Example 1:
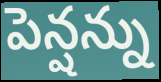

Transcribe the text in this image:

పెన్షన్ను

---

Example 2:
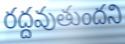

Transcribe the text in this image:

రద్దవుతుందని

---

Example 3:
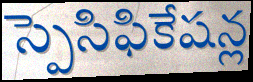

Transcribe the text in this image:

స్పెసిఫికేషన్ల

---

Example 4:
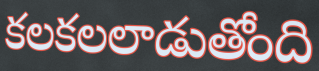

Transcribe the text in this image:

కలకలలాడుతోంది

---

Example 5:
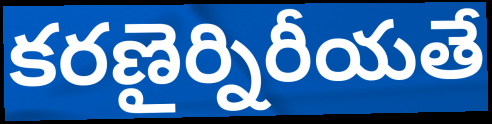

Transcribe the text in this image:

కరణైర్నిరీయతే